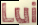
Lui